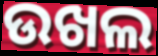
ଉଖଲ